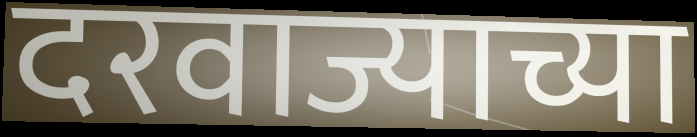
दरवाज्याच्या